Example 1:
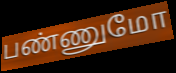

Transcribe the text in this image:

பண்ணுமோ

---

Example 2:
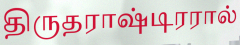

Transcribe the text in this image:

திருதராஷ்டிரரால்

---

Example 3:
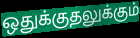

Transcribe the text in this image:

ஒதுக்குதலுக்கும்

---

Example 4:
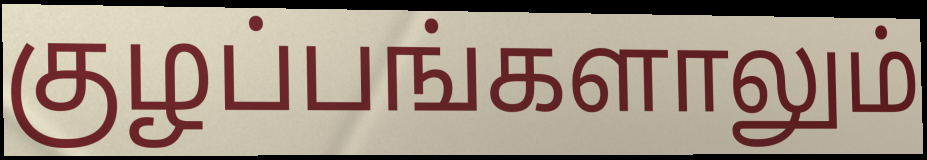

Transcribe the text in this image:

குழப்பங்களாலும்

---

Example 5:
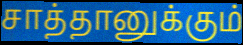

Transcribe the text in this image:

சாத்தானுக்கும்